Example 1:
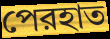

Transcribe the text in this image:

পেরহাত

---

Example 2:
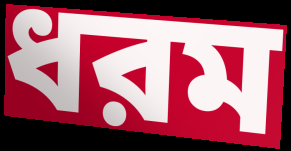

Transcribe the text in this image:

ধরম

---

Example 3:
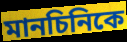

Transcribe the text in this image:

মানচিনিকে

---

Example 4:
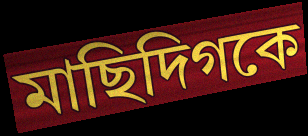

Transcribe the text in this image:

মাছিদিগকে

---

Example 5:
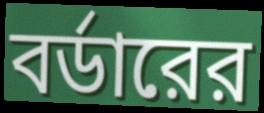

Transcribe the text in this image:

বর্ডারের